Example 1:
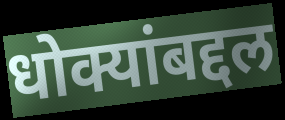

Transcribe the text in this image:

धोक्यांबद्दल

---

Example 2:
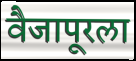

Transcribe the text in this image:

वैजापूरला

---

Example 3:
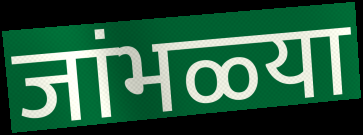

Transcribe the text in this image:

जांभळ्या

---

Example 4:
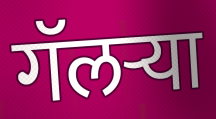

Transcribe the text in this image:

गॅलऱ्या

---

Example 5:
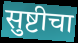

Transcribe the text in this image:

सुष्टीचा